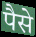
पैसे